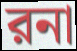
রনা